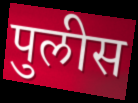
पुलीस